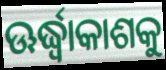
ଊର୍ଦ୍ଧ୍ୱାକାଶକୁ